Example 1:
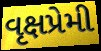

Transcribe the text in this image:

વૃક્ષપ્રેમી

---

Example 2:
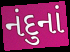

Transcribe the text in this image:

નંદુનાં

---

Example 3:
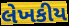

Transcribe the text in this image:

લેખકીય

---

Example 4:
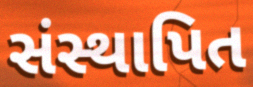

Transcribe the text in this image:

સંસ્થાપિત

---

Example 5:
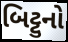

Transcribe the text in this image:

બિટ્ટુનો